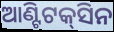
ଆଣ୍ଟିଟକ୍‌ସିନ